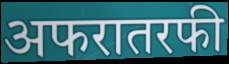
अफरातरफी